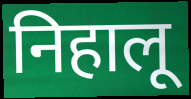
निहालू